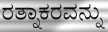
ರತ್ನಾಕರವನ್ನು